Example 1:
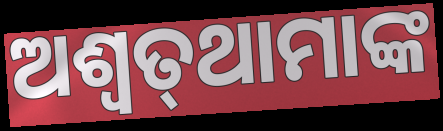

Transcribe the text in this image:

ଅଶ୍ୱତ୍‌ଥାମାଙ୍କ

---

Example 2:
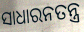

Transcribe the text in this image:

ସାଧାରନତନ୍ତ୍ର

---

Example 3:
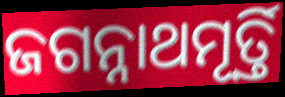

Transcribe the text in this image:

ଜଗନ୍ନାଥମୂର୍ତ୍ତି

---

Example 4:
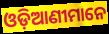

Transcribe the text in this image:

ଓଡ଼ିଆଣୀମାନେ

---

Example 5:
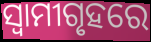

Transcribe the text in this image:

ସ୍ଵାମୀଗୃହରେ